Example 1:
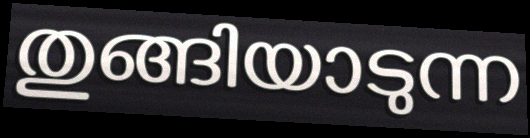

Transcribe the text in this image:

തുങ്ങിയാടുന്ന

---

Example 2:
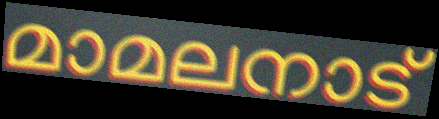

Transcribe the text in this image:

മാമലനാട്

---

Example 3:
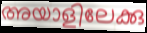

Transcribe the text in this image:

അയാളിലേക്കു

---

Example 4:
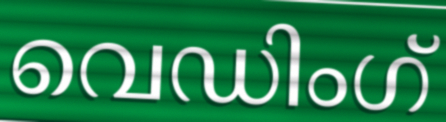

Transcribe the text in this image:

വെഡിംഗ്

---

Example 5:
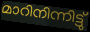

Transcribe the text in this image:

മാറിനിന്നിട്ടു്